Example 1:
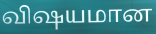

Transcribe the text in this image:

விஷயமான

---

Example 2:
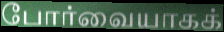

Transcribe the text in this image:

போர்வையாகக்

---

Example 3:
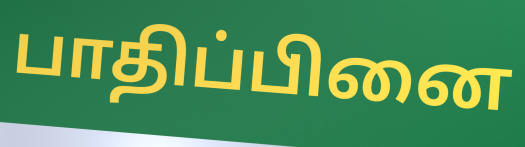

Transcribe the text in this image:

பாதிப்பினை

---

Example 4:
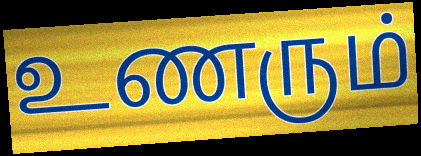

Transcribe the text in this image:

உணரும்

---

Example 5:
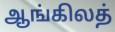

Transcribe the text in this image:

ஆங்கிலத்